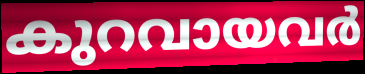
കുറവായവർ